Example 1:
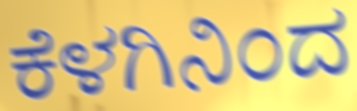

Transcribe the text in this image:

ಕೆಳಗಿನಿಂದ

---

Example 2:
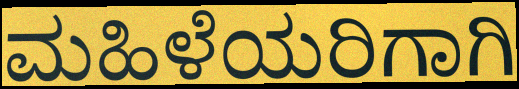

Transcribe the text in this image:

ಮಹಿಳೆಯರಿಗಾಗಿ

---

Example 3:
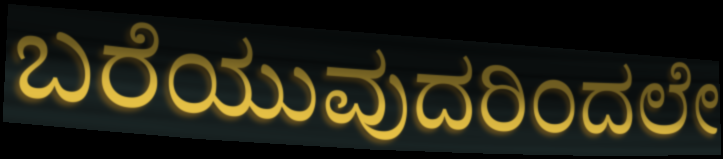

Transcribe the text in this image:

ಬರೆಯುವುದರಿಂದಲೇ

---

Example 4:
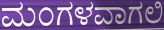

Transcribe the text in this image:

ಮಂಗಳವಾಗಲಿ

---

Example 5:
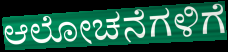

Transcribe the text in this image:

ಆಲೋಚನೆಗಳಿಗೆ